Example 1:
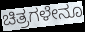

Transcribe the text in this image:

ಚಿತ್ರಗಳೇನೂ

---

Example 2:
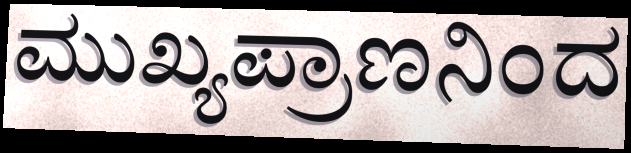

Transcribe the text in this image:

ಮುಖ್ಯಪ್ರಾಣನಿಂದ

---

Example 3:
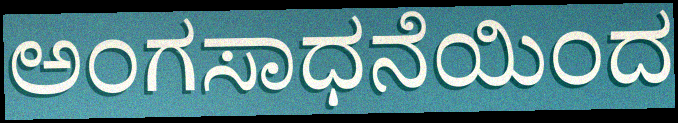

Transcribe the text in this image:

ಅಂಗಸಾಧನೆಯಿಂದ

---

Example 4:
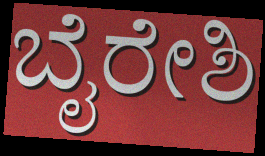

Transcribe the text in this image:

ಬೈರೇಶಿ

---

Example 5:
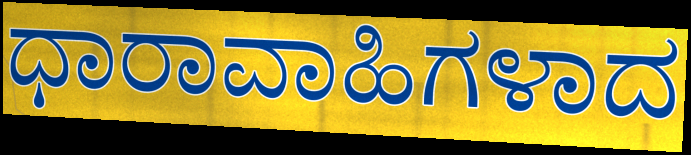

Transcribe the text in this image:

ಧಾರಾವಾಹಿಗಳಾದ